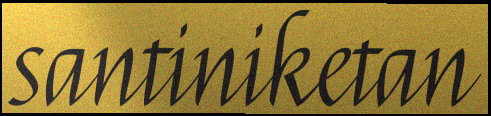
santiniketan